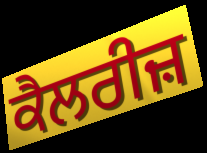
ਕੈਲਰੀਜ਼